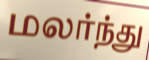
மலர்ந்து